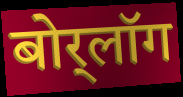
बोर्‌लॉग